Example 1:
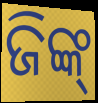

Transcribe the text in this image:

ଜିଙ୍କ୍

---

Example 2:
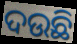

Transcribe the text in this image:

ଦଉଛି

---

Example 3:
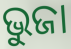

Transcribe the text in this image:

ଭୁଜା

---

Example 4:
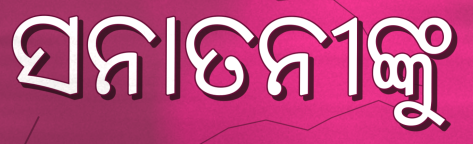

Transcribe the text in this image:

ସନାତନୀଙ୍କୁ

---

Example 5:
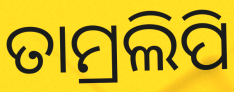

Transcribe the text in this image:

ତାମ୍ରଲିପି